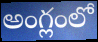
అంగ్లంలో